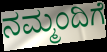
ನಮ್ಮಂದಿಗೆ